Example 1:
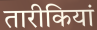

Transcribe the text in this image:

तारीकियां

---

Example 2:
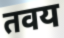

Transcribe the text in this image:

तवय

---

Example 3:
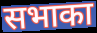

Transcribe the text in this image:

सभाका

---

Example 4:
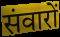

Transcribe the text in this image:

संवारों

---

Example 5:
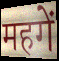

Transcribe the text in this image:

महगें